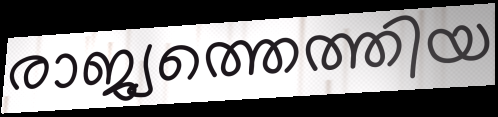
രാജ്യത്തെത്തിയ